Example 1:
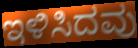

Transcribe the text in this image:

ಇಳಿಸಿದವು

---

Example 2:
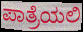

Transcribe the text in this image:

ಪಾತ್ರೆಯಲಿ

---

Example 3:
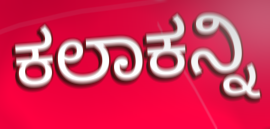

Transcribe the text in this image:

ಕಲಾಕನ್ನಿ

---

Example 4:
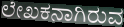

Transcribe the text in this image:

ಲೇಖಕನಾಗಿರುವ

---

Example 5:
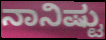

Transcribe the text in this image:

ನಾನಿಷ್ಟು